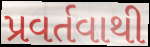
પ્રવર્તવાથી